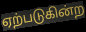
ஏற்படுகின்ற